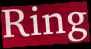
Ring